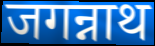
जगन्नाथ